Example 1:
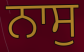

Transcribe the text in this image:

ਨਾਸੁ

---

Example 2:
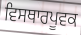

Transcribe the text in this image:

ਵਿਸਥਾਰਪੂਵਕ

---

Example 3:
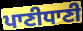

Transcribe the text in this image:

ਪਾਣੀਧਾਣੀ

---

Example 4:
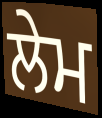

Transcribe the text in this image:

ਲੇਮ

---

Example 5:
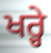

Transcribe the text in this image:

ਖਰ੍ਚੇ